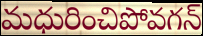
మధురించిపోవగన్